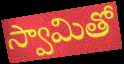
స్వామితో